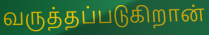
வருத்தப்படுகிறான்